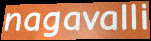
nagavalli